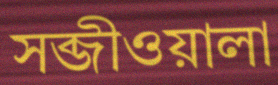
সব্জীওয়ালা